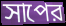
সাপের